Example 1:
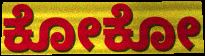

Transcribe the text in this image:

ಕೋಕೋ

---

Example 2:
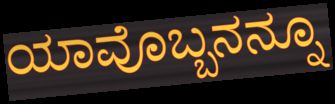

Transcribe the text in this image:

ಯಾವೊಬ್ಬನನ್ನೂ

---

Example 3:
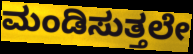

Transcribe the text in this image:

ಮಂಡಿಸುತ್ತಲೇ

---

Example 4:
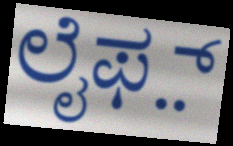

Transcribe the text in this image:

ಲೈಫ಼್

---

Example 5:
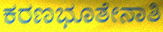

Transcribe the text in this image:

ಕರಣಭೂತೇನಾತಿ